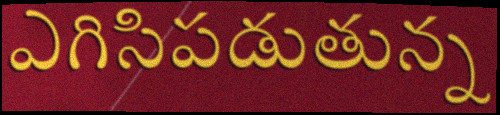
ఎగిసిపడుతున్న